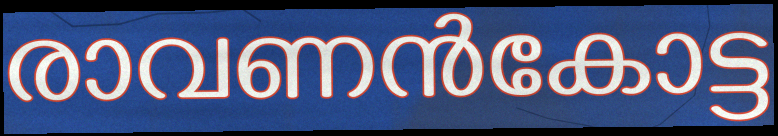
രാവണൻകോട്ട